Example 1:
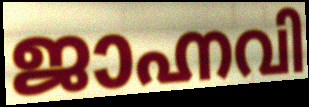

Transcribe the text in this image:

ജാഹ്നവി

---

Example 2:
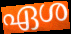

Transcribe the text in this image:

ഏശ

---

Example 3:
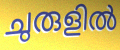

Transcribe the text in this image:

ചുരുളിൽ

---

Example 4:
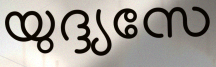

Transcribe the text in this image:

യുദ്ദ്യസേ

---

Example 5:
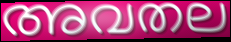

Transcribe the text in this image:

അവതല